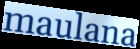
maulana